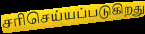
சரிசெய்யப்படுகிறது